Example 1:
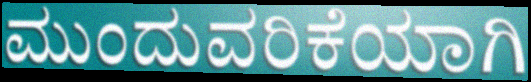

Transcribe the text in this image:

ಮುಂದುವರಿಕೆಯಾಗಿ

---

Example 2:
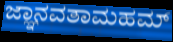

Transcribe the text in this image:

ಜ್ಞಾನವತಾಮಹಮ್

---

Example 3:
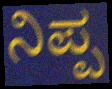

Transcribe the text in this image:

ನಿಪ್ಪ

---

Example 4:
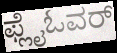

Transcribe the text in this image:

ಫ್ಲೈಓವರ್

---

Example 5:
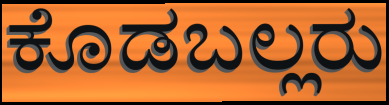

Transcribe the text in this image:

ಕೊಡಬಲ್ಲರು